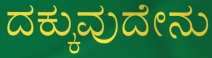
ದಕ್ಕುವುದೇನು